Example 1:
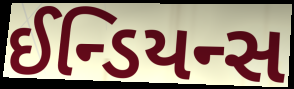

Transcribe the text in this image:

ઈન્ડિયન્સ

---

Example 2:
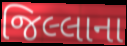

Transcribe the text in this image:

જિલ્લાના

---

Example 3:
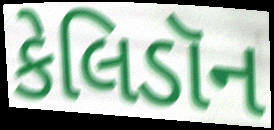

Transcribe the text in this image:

કેલિડૉન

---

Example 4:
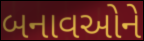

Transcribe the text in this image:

બનાવઓને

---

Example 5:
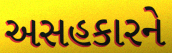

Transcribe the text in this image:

અસહકારને